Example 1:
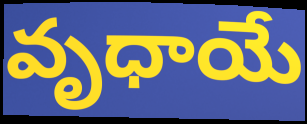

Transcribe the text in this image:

వృధాయే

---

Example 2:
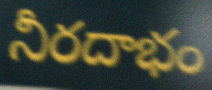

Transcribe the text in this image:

నీరదాభం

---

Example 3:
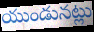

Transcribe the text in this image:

యుండునట్లు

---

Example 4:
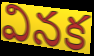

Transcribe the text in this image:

వినక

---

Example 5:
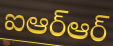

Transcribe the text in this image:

ఐఆర్ఆర్